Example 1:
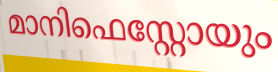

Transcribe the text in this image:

മാനിഫെസ്റ്റോയും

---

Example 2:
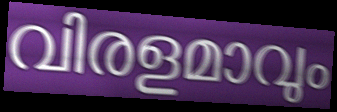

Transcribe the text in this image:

വിരളമാവും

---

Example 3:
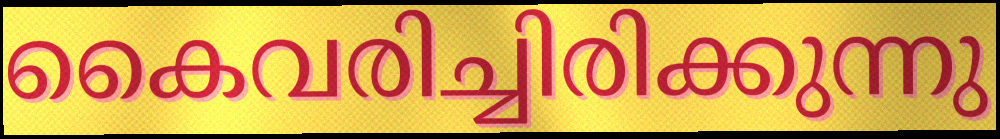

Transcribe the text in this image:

കൈവരിച്ചിരിക്കുന്നു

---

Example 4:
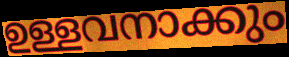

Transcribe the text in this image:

ഉള്ളവനാക്കും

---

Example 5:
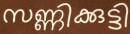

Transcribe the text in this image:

സണ്ണിക്കുട്ടി